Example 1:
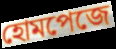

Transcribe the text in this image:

হোমপেজে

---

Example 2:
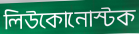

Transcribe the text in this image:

লিউকোনোস্টক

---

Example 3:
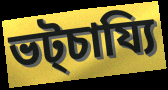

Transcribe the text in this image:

ভট্চায্যি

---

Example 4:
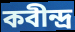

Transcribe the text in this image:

কবীন্দ্র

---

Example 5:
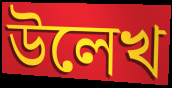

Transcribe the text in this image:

উলেখ